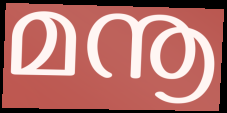
മനൂ